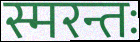
स्मरन्तः